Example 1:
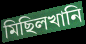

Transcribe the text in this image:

মিছিলখানি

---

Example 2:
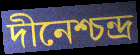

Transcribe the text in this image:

দীনেশ্চন্দ্র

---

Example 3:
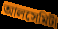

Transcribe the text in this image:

আলসেমিটা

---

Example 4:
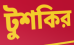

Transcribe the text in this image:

টুশকির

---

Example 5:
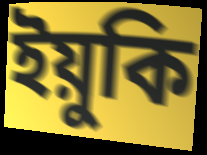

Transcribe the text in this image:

ইয়ুকি